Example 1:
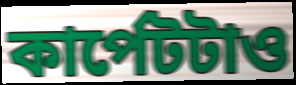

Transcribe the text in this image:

কার্পেটটাও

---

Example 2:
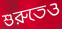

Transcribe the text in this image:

শুরুতেও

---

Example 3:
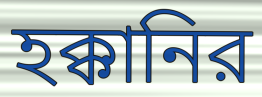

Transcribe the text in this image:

হক্কানির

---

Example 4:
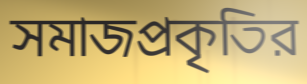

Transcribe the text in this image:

সমাজপ্রকৃতির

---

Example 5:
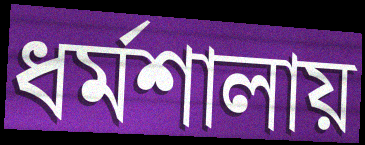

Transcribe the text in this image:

ধর্মশালায়